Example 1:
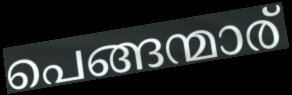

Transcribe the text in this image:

പെങ്ങന്മാര്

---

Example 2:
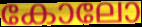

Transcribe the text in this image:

കോലോ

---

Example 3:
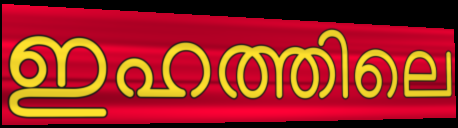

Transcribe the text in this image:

ഇഹത്തിലെ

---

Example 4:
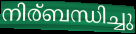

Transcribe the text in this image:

നിര്ബന്ധിച്ചു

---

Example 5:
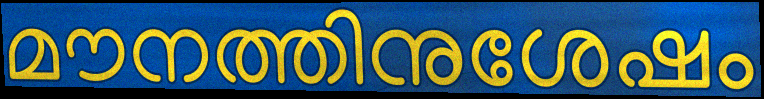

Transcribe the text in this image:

മൗനത്തിനുശേഷം